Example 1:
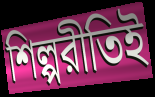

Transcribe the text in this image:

শিল্পরীতিই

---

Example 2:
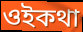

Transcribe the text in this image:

ওইকথা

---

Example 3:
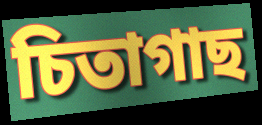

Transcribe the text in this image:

চিতাগাছ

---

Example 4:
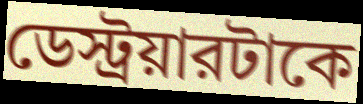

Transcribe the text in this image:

ডেস্ট্রয়ারটাকে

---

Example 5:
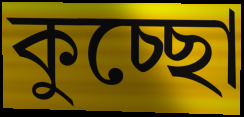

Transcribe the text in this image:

কুচ্ছো